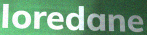
Ioredane